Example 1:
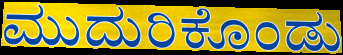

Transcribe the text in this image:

ಮುದುರಿಕೊಂಡು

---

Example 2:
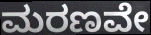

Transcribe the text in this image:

ಮರಣವೇ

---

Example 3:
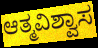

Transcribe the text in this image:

ಆತ್ಮವಿಶ್ವಾಸ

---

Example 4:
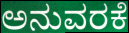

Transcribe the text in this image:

ಅನುವರಕೆ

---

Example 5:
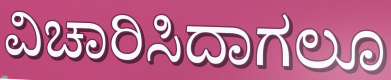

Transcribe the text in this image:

ವಿಚಾರಿಸಿದಾಗಲೂ